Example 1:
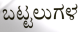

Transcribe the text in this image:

ಬಟ್ಟಲುಗಳ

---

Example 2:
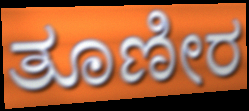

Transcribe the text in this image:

ತೂಣೀರ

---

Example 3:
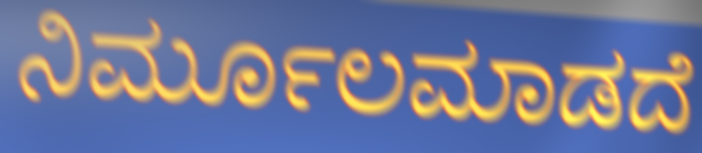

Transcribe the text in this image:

ನಿರ್ಮೂಲಮಾಡದೆ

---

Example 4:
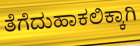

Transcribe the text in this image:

ತೆಗೆದುಹಾಕಲಿಕ್ಕಾಗಿ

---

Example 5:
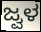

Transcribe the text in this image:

ಜ್ವಳ